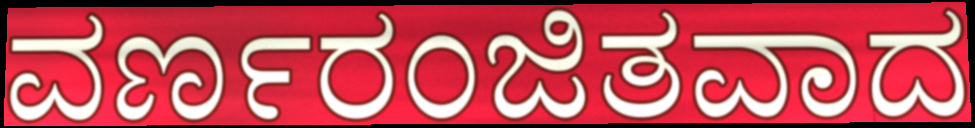
ವರ್ಣರಂಜಿತವಾದ